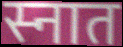
स्नात